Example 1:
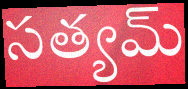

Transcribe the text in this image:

సత్యమ్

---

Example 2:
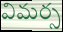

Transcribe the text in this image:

విమర్స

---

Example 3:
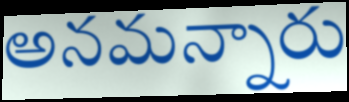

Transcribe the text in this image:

అనమన్నారు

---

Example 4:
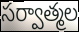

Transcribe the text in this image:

సర్వాత్మల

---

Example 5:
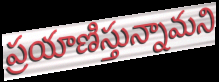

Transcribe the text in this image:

ప్రయాణిస్తున్నామని